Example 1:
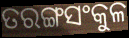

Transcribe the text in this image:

ତରଙ୍ଗସଂକୁଳ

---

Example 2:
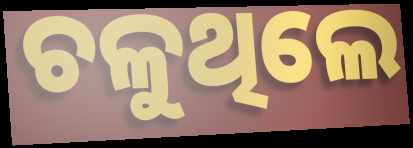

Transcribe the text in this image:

ଚଳୁଥିଲେ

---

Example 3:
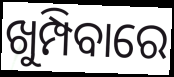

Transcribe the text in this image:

ଖୁମ୍ପିବାରେ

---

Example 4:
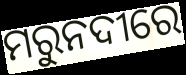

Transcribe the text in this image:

ମରୁନଦୀରେ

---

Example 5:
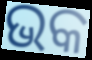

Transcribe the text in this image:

ଭକ